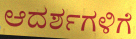
ಆದರ್ಶಗಳಿಗೆ